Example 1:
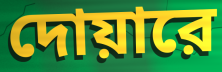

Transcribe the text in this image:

দোয়ারে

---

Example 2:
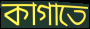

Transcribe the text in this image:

কাগাতে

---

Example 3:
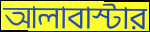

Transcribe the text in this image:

আলাবাস্টার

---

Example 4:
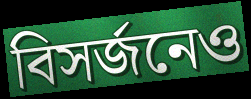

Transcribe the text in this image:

বিসর্জনেও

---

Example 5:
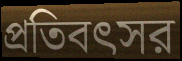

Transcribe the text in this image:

প্রতিবৎসর